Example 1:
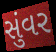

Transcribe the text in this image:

સુંવર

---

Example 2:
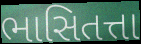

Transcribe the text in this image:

ભાસિતત્તા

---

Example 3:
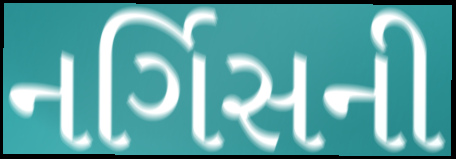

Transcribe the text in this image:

નર્ગિસની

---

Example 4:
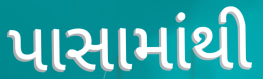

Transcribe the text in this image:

પાસામાંથી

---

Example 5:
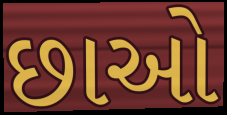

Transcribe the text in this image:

છાઓ